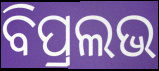
ବିପ୍ରଲଭ